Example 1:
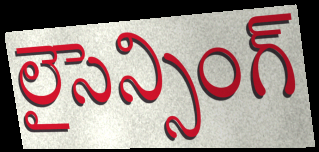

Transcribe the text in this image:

లైసెన్సింగ్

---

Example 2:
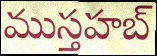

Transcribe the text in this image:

ముస్తహబ్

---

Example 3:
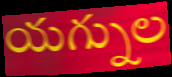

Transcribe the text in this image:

యగ్నుల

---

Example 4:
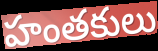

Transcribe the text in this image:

హంతకులు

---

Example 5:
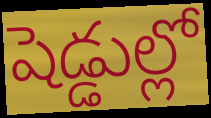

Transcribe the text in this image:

షెడ్డుల్లో